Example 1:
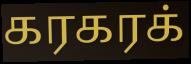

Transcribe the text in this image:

கரகரக்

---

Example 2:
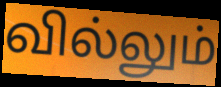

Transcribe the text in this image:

வில்லும்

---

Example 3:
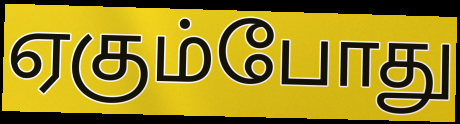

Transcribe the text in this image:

ஏகும்போது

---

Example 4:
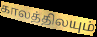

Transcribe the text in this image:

காலத்திலயும்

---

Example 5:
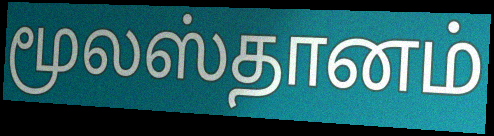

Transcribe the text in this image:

மூலஸ்தானம்